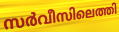
സർവീസിലെത്തി